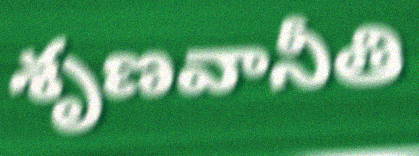
శృణవానీతి